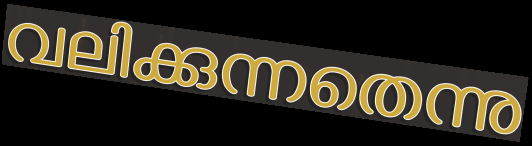
വലിക്കുന്നതെന്നു